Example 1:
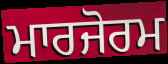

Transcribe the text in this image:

ਮਾਰਜੋਰਮ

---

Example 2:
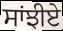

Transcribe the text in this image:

ਸਾਂਝੀਏ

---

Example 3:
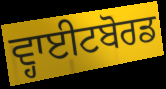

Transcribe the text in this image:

ਵ੍ਹਾਈਟਬੋਰਡ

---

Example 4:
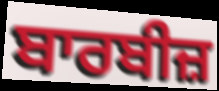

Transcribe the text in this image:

ਬਾਰਬੀਜ਼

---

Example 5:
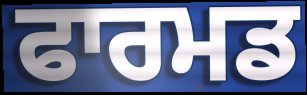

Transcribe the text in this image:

ਫਾਰਮਡ